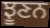
ਝੂਣਨ